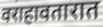
वराहावतारात